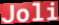
Joli